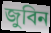
জুবিন